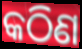
କଠିଣ